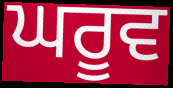
ਘਰੂਵ